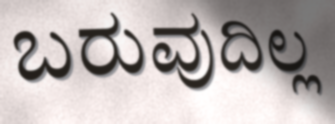
ಬರುವುದಿಲ್ಲ